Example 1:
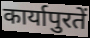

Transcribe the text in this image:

कार्यापुरतें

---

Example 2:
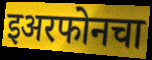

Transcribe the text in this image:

इअरफोनचा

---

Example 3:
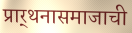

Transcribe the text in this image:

प्रार्थनासमाजाची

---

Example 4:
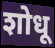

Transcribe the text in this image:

शोधू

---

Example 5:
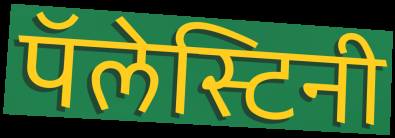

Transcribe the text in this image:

पॅलेस्टिनी